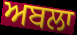
ਅਬਲਾ